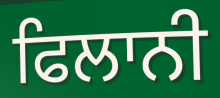
ਫਿਲਾਨੀ